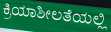
ಕ್ರಿಯಾಶೀಲತೆಯಲ್ಲಿ